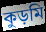
কুড়মি